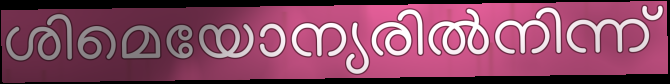
ശിമെയോന്യരിൽനിന്ന്